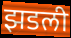
झडली